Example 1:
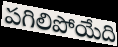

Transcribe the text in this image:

పగిలిపోయేది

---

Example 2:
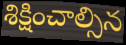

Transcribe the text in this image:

శిక్షించాల్సిన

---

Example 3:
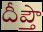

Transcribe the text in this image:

దీప్తౌ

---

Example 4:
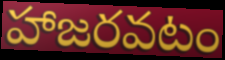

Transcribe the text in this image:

హాజరవటం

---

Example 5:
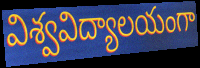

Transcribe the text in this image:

విశ్వవిద్యాలయంగా